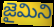
జైమిని